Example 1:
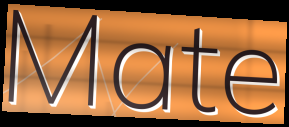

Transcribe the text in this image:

Mate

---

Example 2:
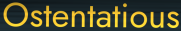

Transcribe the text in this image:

Ostentatious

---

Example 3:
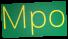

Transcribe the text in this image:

Mpo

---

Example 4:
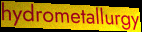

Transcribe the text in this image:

hydrometallurgy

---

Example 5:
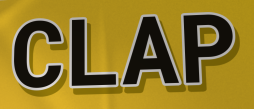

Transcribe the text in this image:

CLAP